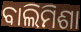
ବାଲିମିଶା